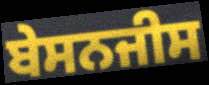
ਬੇਸਨਜੀਸ